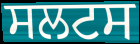
ਸਲਟਸ